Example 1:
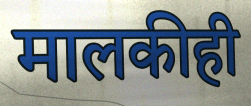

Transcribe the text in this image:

मालकीही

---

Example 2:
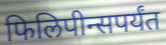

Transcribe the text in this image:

फिलिपीन्सपर्यंत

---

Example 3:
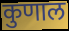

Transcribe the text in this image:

कुणाल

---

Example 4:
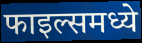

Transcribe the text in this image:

फाइल्समध्ये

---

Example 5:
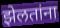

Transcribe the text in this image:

झेलतांना